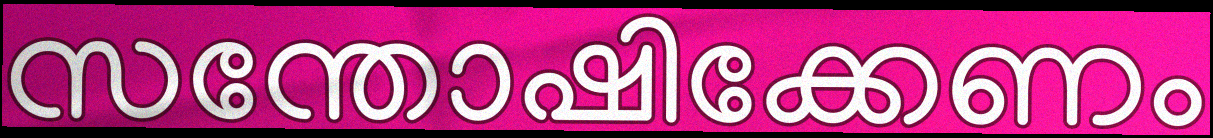
സന്തോഷിക്കേണം